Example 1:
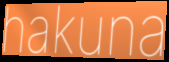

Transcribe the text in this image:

hakuna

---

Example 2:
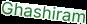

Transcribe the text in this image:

Ghashiram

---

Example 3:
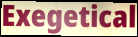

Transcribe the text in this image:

Exegetical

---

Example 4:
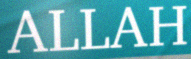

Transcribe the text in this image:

ALLAH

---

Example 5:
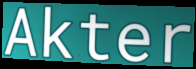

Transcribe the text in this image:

Akter